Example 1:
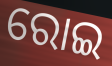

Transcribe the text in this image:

ରୋଇ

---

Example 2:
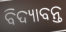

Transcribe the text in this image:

ବିଦ୍ୟାବନ୍ତ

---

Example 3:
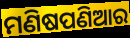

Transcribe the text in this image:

ମଣିଷପଣିଆର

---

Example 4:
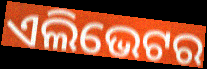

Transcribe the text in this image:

ଏଲିଭେଟର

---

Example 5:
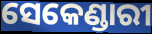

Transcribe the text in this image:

ସେକେଣ୍ଡାରୀ